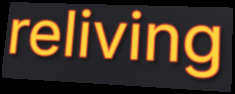
reliving